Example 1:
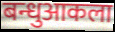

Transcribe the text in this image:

बन्धुआकला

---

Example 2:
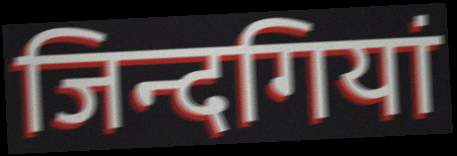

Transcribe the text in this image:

जिन्दगियां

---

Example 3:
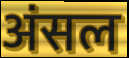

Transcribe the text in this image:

अंसल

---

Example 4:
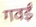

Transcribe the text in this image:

गवईं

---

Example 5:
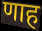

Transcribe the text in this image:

णाह